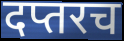
दप्तरच